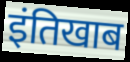
इंतिखाब